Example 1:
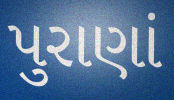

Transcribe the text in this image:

પુરાણાં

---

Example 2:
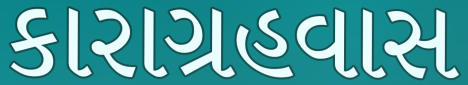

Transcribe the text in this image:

કારાગ્રહવાસ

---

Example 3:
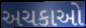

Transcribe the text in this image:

અચકાઓ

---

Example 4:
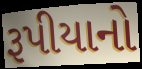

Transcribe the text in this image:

રૂપીયાનો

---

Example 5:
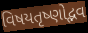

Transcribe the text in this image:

વિષયતૃષ્ણોદ્ભવ